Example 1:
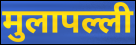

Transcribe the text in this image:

मुलापल्ली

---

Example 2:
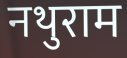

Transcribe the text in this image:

नथुराम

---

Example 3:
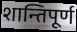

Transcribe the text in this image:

शान्तिपूर्ण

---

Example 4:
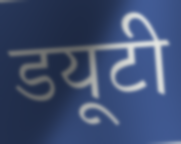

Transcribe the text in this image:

डयूटी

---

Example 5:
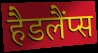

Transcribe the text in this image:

हैडलैंप्स